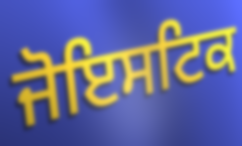
ਜੋਇਸਟਿਕ